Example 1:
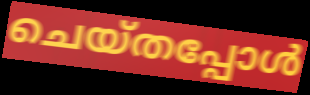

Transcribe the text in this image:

ചെയ്തപ്പോൾ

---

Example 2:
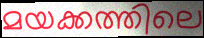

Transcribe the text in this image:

മയക്കത്തിലെ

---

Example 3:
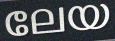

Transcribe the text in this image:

ലേയ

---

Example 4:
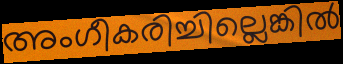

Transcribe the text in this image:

അംഗീകരിച്ചില്ലെങ്കിൽ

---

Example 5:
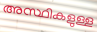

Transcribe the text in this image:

അസ്ഥികളുള്ള